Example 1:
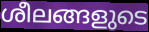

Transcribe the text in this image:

ശീലങ്ങളുടെ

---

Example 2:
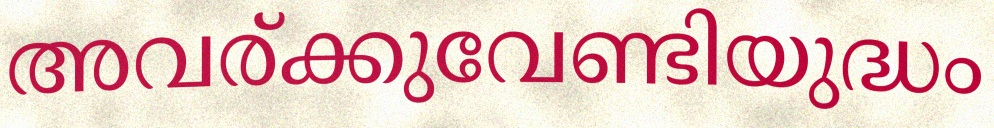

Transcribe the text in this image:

അവര്ക്കുവേണ്ടിയുദ്ധം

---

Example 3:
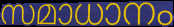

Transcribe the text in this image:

സമാധാനം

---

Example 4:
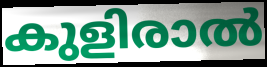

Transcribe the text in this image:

കുളിരാൽ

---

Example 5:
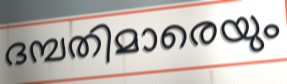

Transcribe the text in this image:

ദമ്പതിമാരെയും